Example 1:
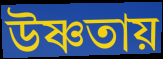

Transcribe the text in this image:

উষ্ণতায়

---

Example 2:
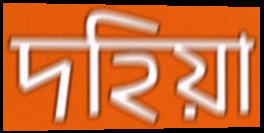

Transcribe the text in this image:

দহিয়া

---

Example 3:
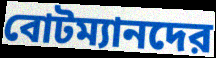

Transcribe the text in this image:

বোটম্যানদের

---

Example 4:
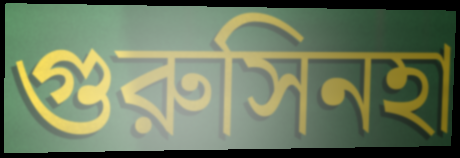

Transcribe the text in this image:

গুরুসিনহা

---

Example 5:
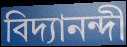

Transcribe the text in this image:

বিদ্যানন্দী